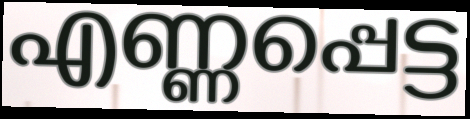
എണ്ണപ്പെട്ട